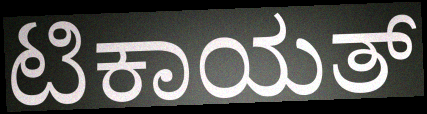
ಟಿಕಾಯತ್